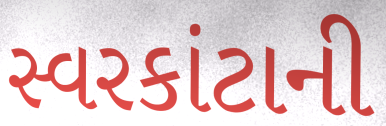
સ્વરકાંટાની